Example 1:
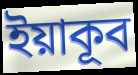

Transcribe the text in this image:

ইয়াকূব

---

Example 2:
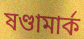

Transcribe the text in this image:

ষণ্ডামার্ক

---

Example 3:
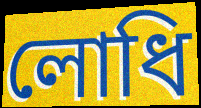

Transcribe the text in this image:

লোধি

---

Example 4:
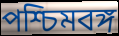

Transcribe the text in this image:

পশ্চিমবঙ্গ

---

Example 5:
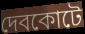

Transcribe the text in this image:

দেবকোটে